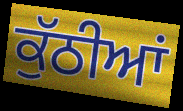
ਕੁੱਠੀਆਂ